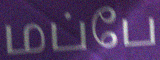
மப்பே